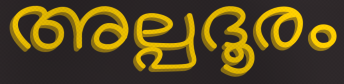
അല്പദൂരം